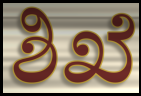
ಶಿಖೆ